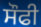
ਸੌਫੀ